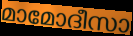
മാമോദീസാ